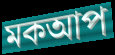
মকআপ